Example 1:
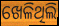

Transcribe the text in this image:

ଖେଳିଥିଲି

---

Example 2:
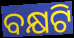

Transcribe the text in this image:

ବକ୍ଷଟି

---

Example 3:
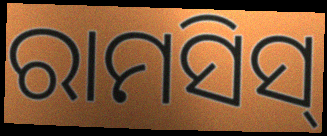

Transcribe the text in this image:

ରାମସିସ୍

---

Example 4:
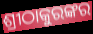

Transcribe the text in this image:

ଶ୍ରୀଠାକୁରଙ୍କର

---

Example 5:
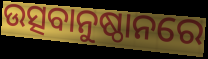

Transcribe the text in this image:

ଉତ୍ସବାନୁଷ୍ଠାନରେ